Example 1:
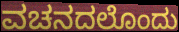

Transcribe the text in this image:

ವಚನದಲೊಂದು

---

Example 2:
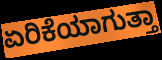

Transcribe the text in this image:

ಏರಿಕೆಯಾಗುತ್ತಾ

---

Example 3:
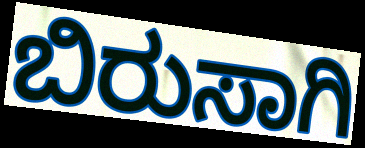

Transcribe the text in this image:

ಬಿರುಸಾಗಿ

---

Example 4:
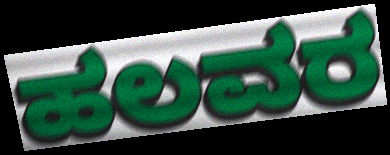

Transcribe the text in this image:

ಹಲವರ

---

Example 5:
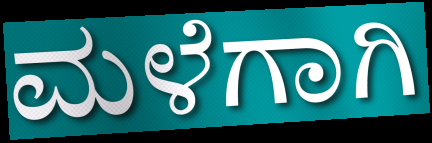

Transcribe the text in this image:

ಮಳೆಗಾಗಿ